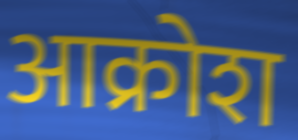
आक्रोश